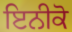
ਇਨੀਕੋ